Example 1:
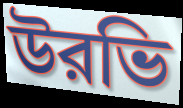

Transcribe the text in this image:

উরভি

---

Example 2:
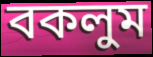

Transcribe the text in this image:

বকলুম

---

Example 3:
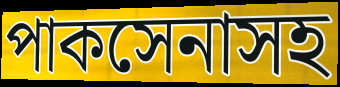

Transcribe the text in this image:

পাকসেনাসহ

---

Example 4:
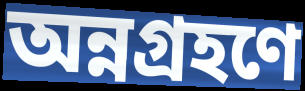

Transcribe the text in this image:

অন্নগ্রহণে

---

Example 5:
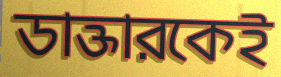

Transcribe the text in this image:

ডাক্তারকেই